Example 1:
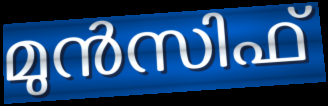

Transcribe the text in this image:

മുൻസിഫ്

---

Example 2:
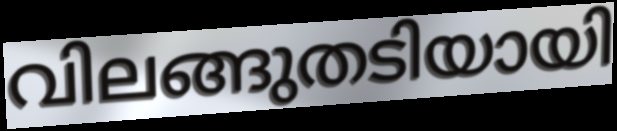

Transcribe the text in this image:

വിലങ്ങുതടിയായി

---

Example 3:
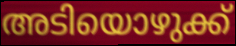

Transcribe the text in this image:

അടിയൊഴുക്ക്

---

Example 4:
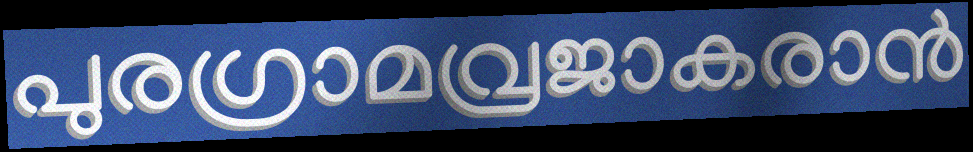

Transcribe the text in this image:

പുരഗ്രാമവ്രജാകരാൻ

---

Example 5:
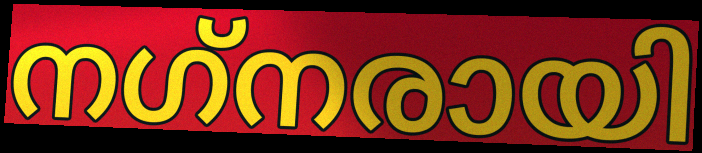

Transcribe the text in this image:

നഗ്‌നരായി